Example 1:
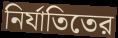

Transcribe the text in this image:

নির্যাতিতের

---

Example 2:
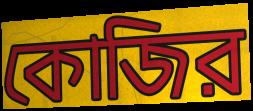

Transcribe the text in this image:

কোজির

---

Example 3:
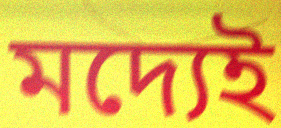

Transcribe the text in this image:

মদ্যেই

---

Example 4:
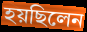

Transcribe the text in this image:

হয়ছিলেন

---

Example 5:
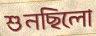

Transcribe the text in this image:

শুনছিলো